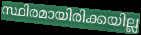
സ്ഥിരമായിരിക്കയില്ല